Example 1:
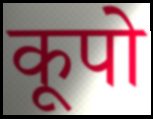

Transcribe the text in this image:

कूपो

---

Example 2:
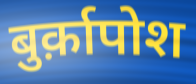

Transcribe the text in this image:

बुर्क़ापोश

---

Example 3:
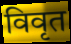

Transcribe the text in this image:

विवृत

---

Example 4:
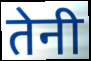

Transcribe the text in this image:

तेनी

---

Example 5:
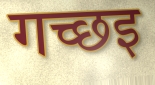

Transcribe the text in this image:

गच्छइ